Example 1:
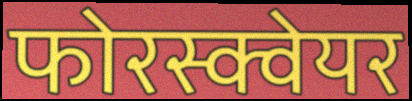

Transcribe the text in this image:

फोरस्क्वेयर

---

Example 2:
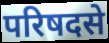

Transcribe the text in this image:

परिषदसे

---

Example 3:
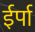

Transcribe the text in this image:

ईर्पा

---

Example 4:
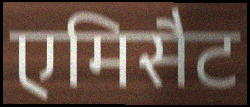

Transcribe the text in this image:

एमिसैट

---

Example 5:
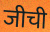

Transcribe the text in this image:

जीची